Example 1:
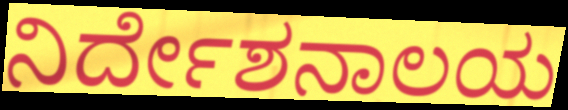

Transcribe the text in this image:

ನಿರ್ದೇಶನಾಲಯ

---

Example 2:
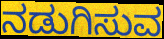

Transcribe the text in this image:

ನಡುಗಿಸುವ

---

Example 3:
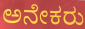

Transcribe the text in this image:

ಅನೇಕರು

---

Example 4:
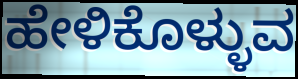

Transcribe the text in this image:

ಹೇಳಿಕೊಳ್ಳುವ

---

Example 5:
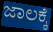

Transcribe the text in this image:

ಜಾಲಕ್ಕೆ